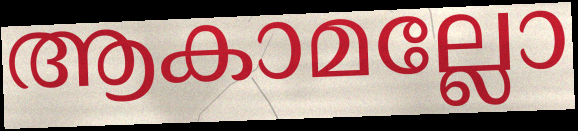
ആകാമല്ലോ